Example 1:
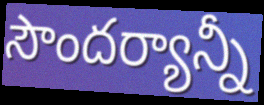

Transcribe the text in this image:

సౌందర్యాన్నీ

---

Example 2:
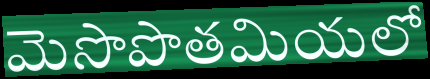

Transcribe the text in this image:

మెసొపొతమియలో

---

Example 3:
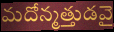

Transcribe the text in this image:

మదోన్మత్తుడవై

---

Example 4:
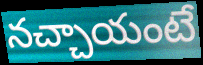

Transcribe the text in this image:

నచ్చాయంటే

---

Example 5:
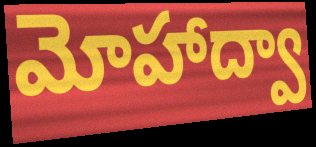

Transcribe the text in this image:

మోహాద్వా